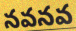
నవనవ